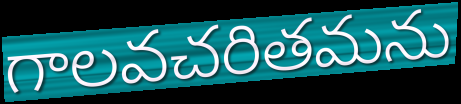
గాలవచరితమను